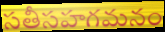
సతీసహగమనం